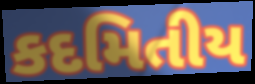
કદમિતીય